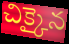
చిక్కైన